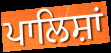
ਪਾਲਿਸ਼ਾਂ